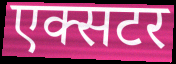
एक्सटर